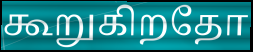
கூறுகிறதோ